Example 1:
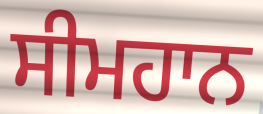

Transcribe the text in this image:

ਸੀਮਹਾਨ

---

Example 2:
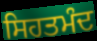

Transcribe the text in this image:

ਸਿਹਤਮੰਦ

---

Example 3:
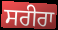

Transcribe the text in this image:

ਸਰੀਰਾ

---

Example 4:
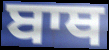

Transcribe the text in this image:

ਬਾਥ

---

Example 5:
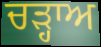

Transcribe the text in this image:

ਚੜ੍ਹਾਅ